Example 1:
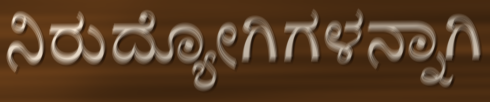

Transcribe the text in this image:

ನಿರುದ್ಯೋಗಿಗಳನ್ನಾಗಿ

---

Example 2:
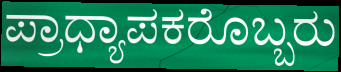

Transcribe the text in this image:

ಪ್ರಾಧ್ಯಾಪಕರೊಬ್ಬರು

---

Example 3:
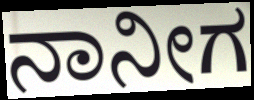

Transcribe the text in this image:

ನಾನೀಗ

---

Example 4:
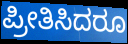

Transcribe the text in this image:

ಪ್ರೀತಿಸಿದರೂ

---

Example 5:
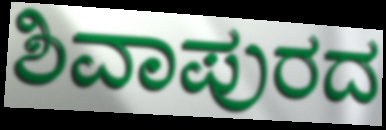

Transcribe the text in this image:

ಶಿವಾಪುರದ